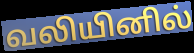
வலியினில்